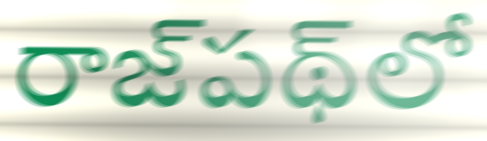
రాజ్‌పథ్‌లో